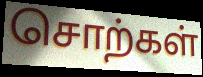
சொற்கள்